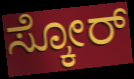
ಸ್ಕೋರ್